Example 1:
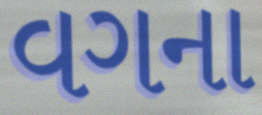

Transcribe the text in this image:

વગના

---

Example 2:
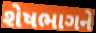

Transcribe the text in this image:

શેષભાગને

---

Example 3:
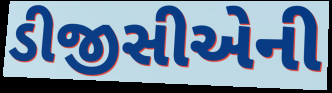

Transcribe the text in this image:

ડીજીસીએની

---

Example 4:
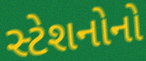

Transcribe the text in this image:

સ્ટેશનોનો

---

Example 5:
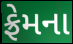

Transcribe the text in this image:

ફ્રેમના